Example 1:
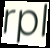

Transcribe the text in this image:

rpl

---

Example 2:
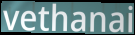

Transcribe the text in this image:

vethanai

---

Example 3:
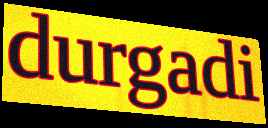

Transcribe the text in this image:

durgadi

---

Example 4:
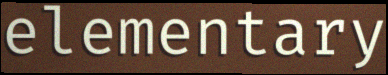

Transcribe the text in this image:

elementary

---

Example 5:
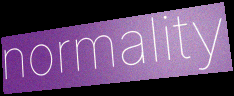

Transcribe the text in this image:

normality